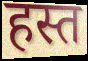
हस्त